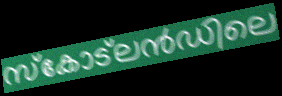
സ്കോട്ലൻഡിലെ